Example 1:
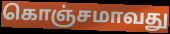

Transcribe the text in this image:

கொஞ்சமாவது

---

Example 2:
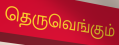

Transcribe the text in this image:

தெருவெங்கும்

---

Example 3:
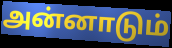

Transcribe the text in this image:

அன்னாடும்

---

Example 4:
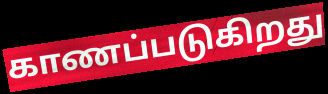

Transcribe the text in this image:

காணப்படுகிறது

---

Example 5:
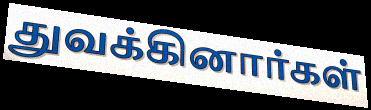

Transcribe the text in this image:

துவக்கினார்கள்